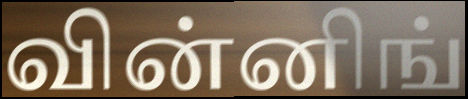
வின்னிங்